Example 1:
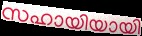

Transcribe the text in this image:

സഹായിയായി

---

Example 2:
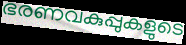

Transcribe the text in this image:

ഭരണവകുപ്പുകളുടെ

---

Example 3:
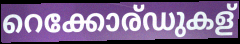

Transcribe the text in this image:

റെക്കോര്ഡുകള്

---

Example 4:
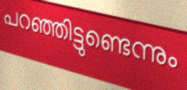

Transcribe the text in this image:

പറഞ്ഞിട്ടുണ്ടെന്നും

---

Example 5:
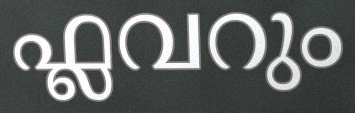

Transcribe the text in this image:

ഫ്ലവറും